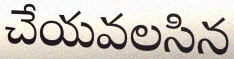
చేయవలసిన